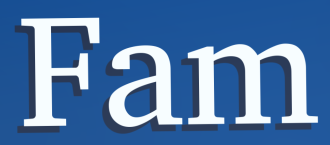
Fam